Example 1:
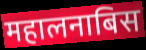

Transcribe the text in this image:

महालनाबिस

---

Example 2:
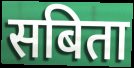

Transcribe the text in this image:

सबिता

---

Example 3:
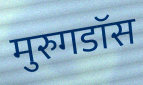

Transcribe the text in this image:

मुरुगडॉस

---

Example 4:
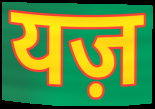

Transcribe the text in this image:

यज़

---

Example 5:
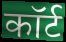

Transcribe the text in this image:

कॉर्ट